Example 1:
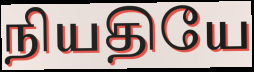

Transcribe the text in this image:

நியதியே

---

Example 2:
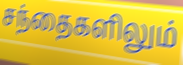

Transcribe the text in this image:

சந்தைகளிலும்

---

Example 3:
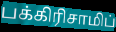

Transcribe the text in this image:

பக்கிரிசாமிப்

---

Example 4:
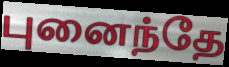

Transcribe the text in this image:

புனைந்தே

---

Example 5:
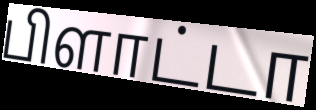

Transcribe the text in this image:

பிளாட்டா